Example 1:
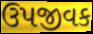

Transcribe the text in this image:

ઉપજીવક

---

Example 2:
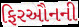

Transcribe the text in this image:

ફિરઔનની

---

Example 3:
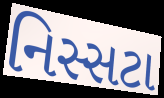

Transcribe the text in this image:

નિસ્સટા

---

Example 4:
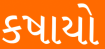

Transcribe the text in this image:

કષાયો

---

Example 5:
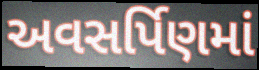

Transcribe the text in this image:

અવસર્પિણમાં